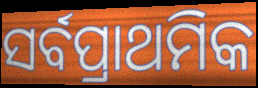
ସର୍ବପ୍ରାଥମିକ